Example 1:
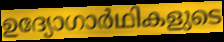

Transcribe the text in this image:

ഉദ്യോഗാർഥികളുടെ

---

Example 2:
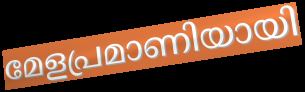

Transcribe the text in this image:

മേളപ്രമാണിയായി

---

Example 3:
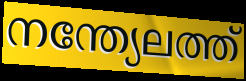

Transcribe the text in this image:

നന്ത്യേലത്ത്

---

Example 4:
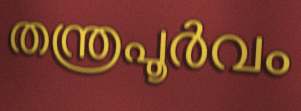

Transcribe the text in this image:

തന്ത്രപൂർവം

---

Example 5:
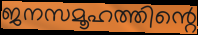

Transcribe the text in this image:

ജനസമൂഹത്തിന്റെ